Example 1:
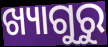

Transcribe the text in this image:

ଖ୍ୟାଗୁରୁ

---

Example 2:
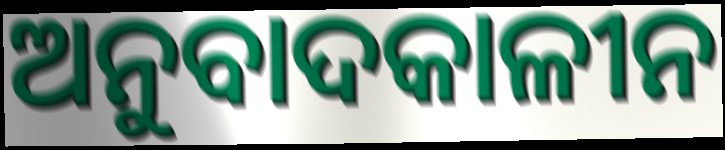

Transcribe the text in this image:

ଅନୁବାଦକାଳୀନ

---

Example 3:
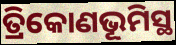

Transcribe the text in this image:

ତ୍ରିକୋଣଭୂମିସ୍ଥ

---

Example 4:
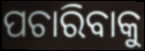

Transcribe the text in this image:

ପଚାରିବାକୁ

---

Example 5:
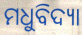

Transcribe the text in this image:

ମଧୁବିଦ୍ୟା